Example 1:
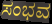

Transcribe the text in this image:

ಸಂಭವ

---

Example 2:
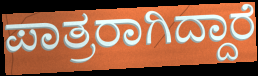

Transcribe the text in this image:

ಪಾತ್ರರಾಗಿದ್ದಾರೆ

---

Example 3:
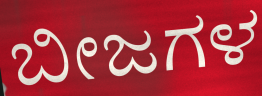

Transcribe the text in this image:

ಬೀಜಗಳ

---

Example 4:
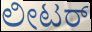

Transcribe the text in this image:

ಲೀಟರ್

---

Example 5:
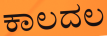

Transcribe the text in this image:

ಕಾಲದಲ